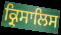
ਕ੍ਰਿਸਾਲਿਸ